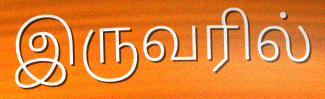
இருவரில்